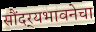
सौंदर्यभावनेचा